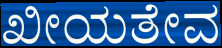
ಖೀಯತೇವ